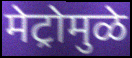
मेट्रोमुळे